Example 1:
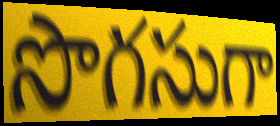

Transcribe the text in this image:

సొగసుగా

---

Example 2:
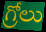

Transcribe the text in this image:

గ్రోలు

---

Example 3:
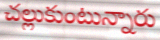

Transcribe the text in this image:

చల్లుకుంటున్నారు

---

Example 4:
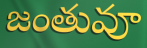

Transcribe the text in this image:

జంతువూ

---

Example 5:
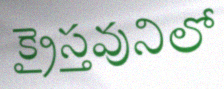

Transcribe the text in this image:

క్రైస్తవునిలో